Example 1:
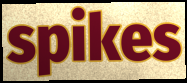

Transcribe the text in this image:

spikes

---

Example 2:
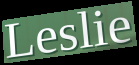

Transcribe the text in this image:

Leslie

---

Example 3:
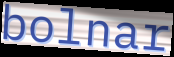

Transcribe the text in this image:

bolnar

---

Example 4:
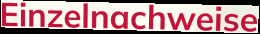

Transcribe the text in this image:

Einzelnachweise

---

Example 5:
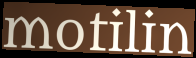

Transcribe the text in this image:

motilin